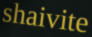
shaivite